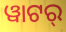
ୱାଟର୍